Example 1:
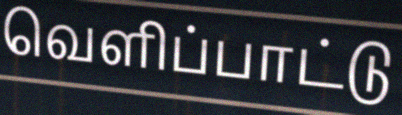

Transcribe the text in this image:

வெளிப்பாட்டு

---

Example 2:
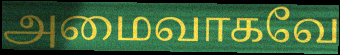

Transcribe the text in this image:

அமைவாகவே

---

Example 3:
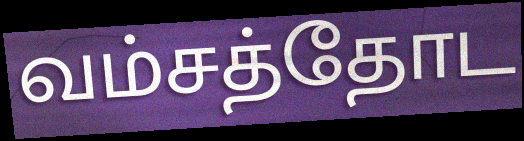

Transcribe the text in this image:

வம்சத்தோட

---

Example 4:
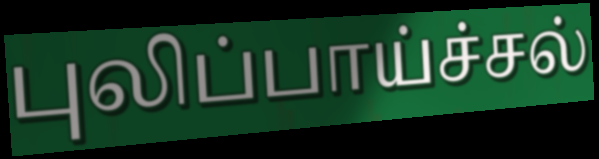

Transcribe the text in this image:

புலிப்பாய்ச்சல்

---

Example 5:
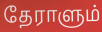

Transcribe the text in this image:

தேராளும்